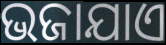
ଭଜାଯାଏ